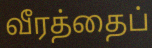
வீரத்தைப்